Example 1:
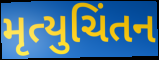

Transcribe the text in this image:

મૃત્યુચિંતન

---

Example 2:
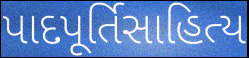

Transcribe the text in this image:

પાદપૂર્તિસાહિત્ય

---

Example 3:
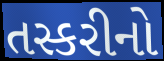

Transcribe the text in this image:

તસ્કરીનો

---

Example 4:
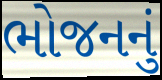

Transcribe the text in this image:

ભોજનનું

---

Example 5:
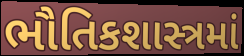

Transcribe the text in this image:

ભૌતિકશાસ્ત્રમાં